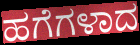
ಹಗೆಗಳಾದ